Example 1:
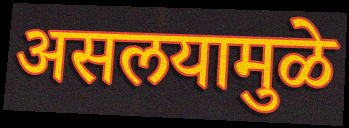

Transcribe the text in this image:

असलयामुळे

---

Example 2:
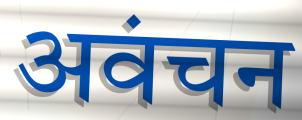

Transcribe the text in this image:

अवंचन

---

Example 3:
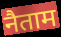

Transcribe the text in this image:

नैताम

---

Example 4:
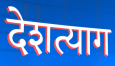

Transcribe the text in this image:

देशत्याग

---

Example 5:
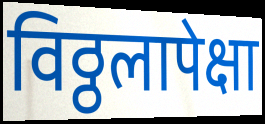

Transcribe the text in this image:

विठ्ठलापेक्षा